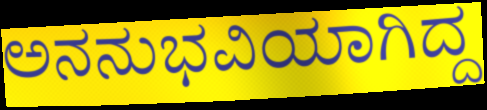
ಅನನುಭವಿಯಾಗಿದ್ದ